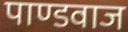
पाण्डवाज